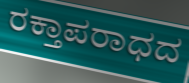
ರಕ್ತಾಪರಾಧದ